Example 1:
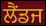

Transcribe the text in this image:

ਲੈਂਡਜ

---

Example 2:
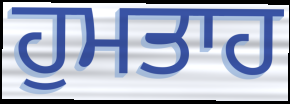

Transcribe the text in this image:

ਹੁਮਤਾਹ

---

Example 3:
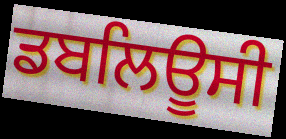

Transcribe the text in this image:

ਡਬਲਿਊਸੀ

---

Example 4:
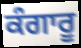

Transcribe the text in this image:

ਕੰਗਾਰੂ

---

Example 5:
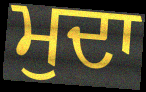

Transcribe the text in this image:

ਮੁਦਾ